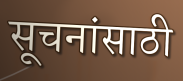
सूचनांसाठी